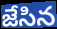
జేసిన